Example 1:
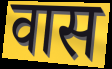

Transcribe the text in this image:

वास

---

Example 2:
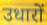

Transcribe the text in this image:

उधारों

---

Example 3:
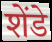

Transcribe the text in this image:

शेंडे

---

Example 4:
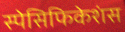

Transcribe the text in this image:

स्पेसिफिकेशंस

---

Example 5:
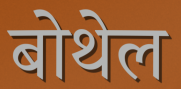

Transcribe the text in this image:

बोथेल